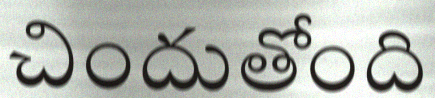
చిందుతోంది